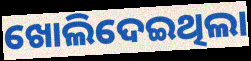
ଖୋଲିଦେଇଥିଲା